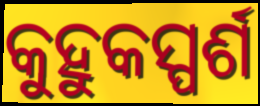
କୁହୁକସ୍ପର୍ଶ